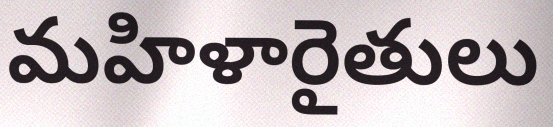
మహిళారైతులు